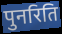
पुनरिति